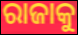
ରାଜାକୁ